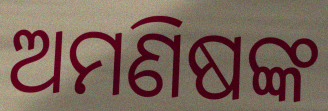
ଅମଣିଷଙ୍କ